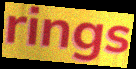
rings